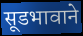
सूडभावाने